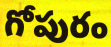
గోపురం